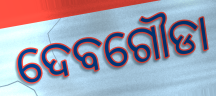
ଦେବଗୌଡା